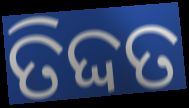
ତିଦ୍ଦତ